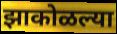
झाकोळल्या